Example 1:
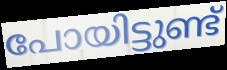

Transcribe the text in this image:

പോയിട്ടുണ്ട്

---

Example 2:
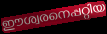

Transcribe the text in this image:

ഈശ്വരനെപ്പറ്റിയ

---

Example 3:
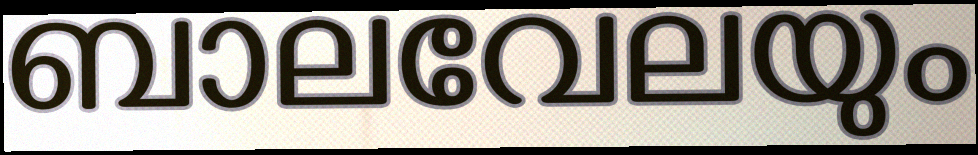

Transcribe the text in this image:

ബാലവേലയും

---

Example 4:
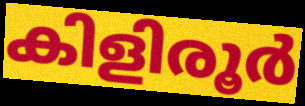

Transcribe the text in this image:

കിളിരൂർ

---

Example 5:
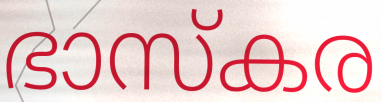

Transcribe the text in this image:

ഭാസ്കര